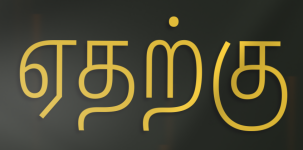
ஏதற்கு